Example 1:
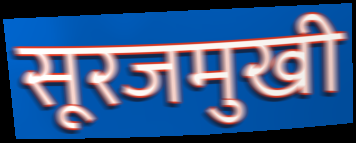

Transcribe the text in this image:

सूरजमुखी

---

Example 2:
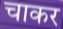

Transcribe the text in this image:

चाकर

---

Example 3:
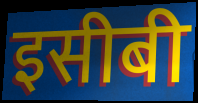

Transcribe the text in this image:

इसीबी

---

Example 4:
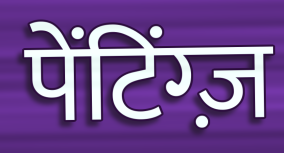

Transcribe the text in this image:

पेंटिंग्ज़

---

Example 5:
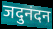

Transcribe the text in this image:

जदुनंदन